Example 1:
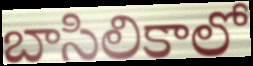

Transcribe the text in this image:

బాసిలికాలో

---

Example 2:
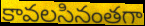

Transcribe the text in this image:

కావలసినంతగా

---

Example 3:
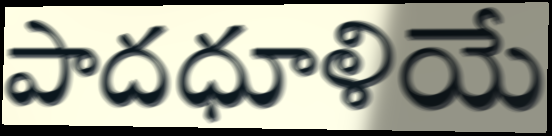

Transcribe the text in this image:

పాదధూళియే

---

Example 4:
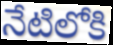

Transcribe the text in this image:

నేటిలోకి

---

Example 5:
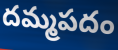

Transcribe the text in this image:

దమ్మపదం